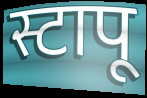
स्टापू